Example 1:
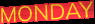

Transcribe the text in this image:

MONDAY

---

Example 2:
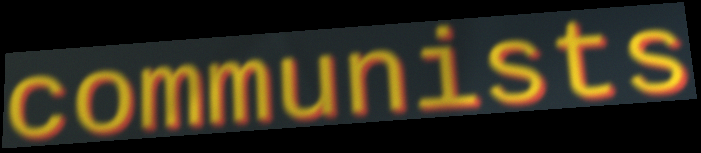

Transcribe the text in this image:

communists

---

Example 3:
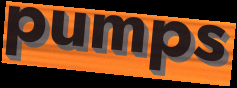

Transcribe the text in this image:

pumps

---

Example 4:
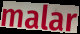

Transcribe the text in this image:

malar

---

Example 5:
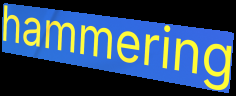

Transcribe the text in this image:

hammering